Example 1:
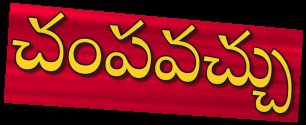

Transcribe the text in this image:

చంపవచ్చు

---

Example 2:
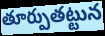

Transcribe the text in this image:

తూర్పుతట్టున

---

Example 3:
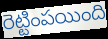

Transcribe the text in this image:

రెట్టింపయింది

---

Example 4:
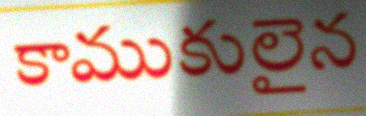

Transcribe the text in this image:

కాముకులైన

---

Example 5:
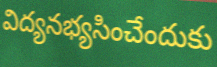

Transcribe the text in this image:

విద్యనభ్యసించేందుకు